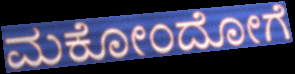
ಮಕೋಂದೋಗೆ